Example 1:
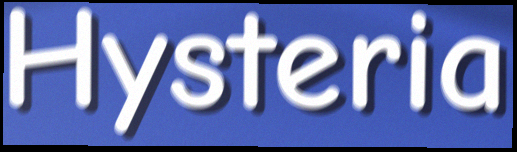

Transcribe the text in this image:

Hysteria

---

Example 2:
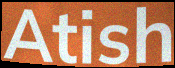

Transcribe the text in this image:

Atish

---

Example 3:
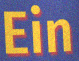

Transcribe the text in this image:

Ein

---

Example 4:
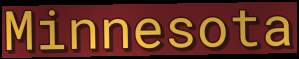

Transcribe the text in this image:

Minnesota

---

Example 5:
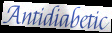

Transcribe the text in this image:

Antidiabetic